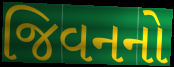
જિવનનો